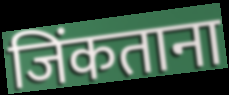
जिंकताना